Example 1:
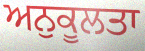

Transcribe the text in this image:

ਅਨੁਕੂਲਤਾ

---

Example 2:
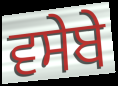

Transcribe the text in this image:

ਵਸੇਬੇ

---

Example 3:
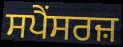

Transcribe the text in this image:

ਸਪੈਂਸਰਜ਼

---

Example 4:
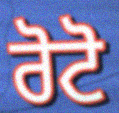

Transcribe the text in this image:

ਰੋਟੋ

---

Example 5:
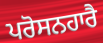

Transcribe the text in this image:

ਪਰੋਸਨਹਾਰੈ